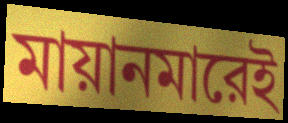
মায়ানমারেই